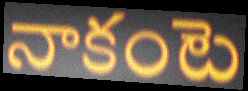
నాకంటె